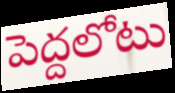
పెద్దలోటు